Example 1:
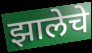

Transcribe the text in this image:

झालेचे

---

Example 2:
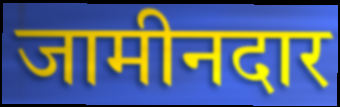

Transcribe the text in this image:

जामीनदार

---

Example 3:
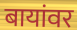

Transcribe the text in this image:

बायांवर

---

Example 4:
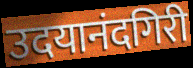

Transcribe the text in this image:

उदयानंदगिरी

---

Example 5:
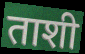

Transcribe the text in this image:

ताशी